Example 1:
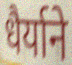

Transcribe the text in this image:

धैर्याने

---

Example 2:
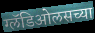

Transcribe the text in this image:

ग्लॅडिओलसच्या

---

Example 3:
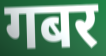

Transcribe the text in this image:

गबर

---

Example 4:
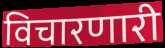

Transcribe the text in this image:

विचारणारी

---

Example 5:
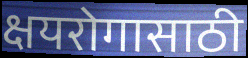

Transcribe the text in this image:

क्षयरोगासाठी